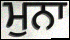
ਮੁਨਾ